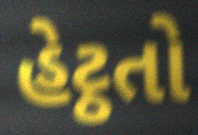
હેટ્ઠતો